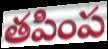
తపింప